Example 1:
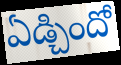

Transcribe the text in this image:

ఏడ్చిందో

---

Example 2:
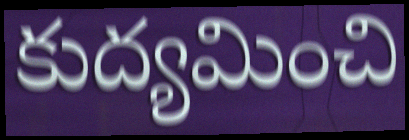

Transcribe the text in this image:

కుద్యమించి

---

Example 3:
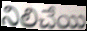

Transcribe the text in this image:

నిలిచేయి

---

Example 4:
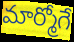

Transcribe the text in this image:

మార్మోగే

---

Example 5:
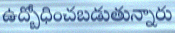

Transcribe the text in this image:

ఉద్బోధించబడుతున్నారు